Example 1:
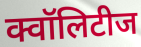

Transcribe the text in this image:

क्वॉलिटीज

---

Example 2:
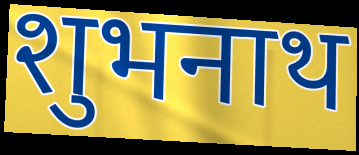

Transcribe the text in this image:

शुभनाथ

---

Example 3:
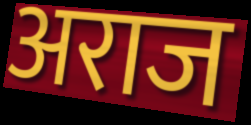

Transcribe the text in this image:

अराज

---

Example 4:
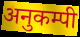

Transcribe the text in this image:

अनुकम्पी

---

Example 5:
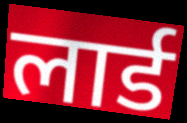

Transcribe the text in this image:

लार्ड